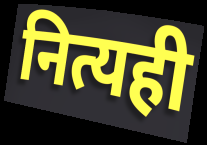
नित्यही